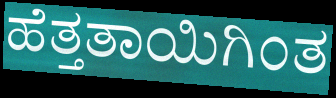
ಹೆತ್ತತಾಯಿಗಿಂತ